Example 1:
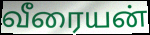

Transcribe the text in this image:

வீரையன்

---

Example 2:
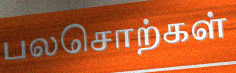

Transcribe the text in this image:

பலசொற்கள்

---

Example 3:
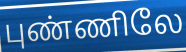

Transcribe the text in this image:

புண்ணிலே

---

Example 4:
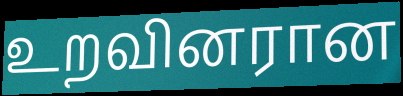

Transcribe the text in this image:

உறவினரான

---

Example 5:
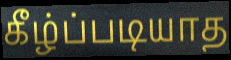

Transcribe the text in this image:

கீழ்ப்படியாத